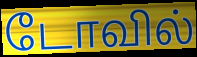
டோவில்